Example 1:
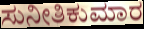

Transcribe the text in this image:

ಸುನೀತಿಕುಮಾರ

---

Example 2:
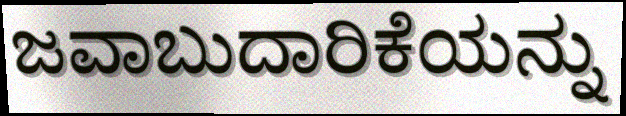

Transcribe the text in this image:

ಜವಾಬುದಾರಿಕೆಯನ್ನು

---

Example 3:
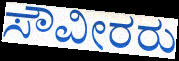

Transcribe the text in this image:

ಸೌವೀರರು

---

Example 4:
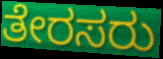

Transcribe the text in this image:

ತೇರಸರು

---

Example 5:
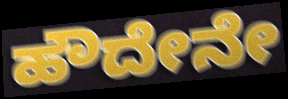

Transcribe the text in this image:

ಹೌದೇನೇ